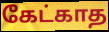
கேட்காத